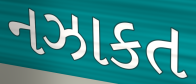
નઝાકત